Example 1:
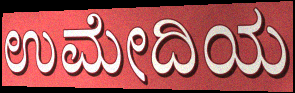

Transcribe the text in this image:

ಉಮೇದಿಯ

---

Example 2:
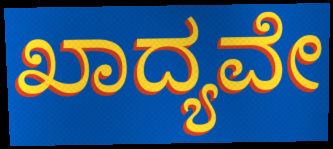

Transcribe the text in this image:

ಖಾದ್ಯವೇ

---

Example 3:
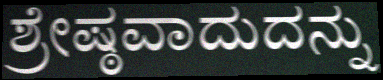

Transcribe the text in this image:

ಶ್ರೇಷ್ಠವಾದುದನ್ನು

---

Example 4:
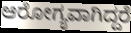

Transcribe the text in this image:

ಆರೋಗ್ಯವಾಗಿದ್ದರೆ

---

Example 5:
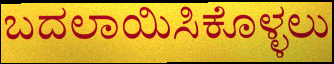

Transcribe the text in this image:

ಬದಲಾಯಿಸಿಕೊಳ್ಳಲು